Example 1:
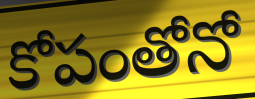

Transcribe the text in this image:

కోపంతోనో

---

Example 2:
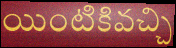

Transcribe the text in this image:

యింటికివచ్చి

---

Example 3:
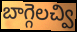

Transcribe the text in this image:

బాగ్గెలచ్వి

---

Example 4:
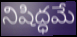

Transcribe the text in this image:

నిషిద్ధమే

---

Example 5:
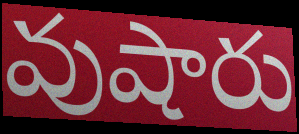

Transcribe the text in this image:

వుషారు